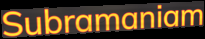
Subramaniam